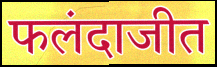
फलंदाजीत